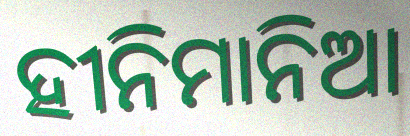
ହୀନିମାନିଆ